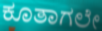
ಕೂತಾಗಲೇ